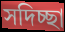
সদিচ্ছা